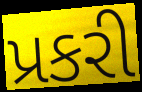
પ્રકરી